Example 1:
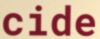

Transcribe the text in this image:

cide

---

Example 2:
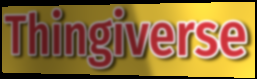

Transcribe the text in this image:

Thingiverse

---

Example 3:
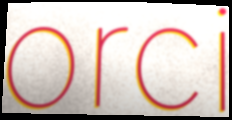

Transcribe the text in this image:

orci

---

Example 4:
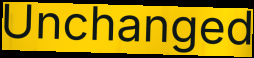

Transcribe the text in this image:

Unchanged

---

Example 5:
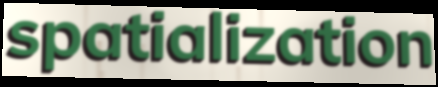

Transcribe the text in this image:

spatialization